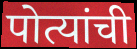
पोत्यांची